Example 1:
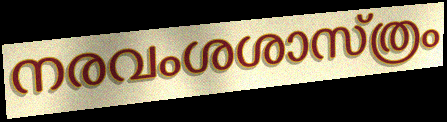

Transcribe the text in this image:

നരവംശശാസ്‌ത്രം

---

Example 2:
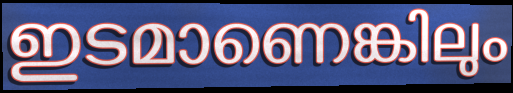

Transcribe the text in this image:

ഇടമാണെങ്കിലും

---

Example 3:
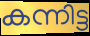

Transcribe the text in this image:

കന്നിട്ട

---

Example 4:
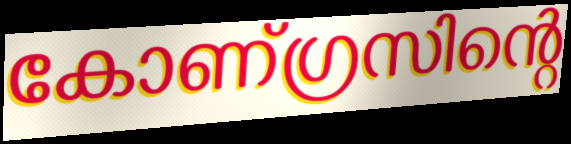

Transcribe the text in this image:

കോണ്ഗ്രസിന്റെ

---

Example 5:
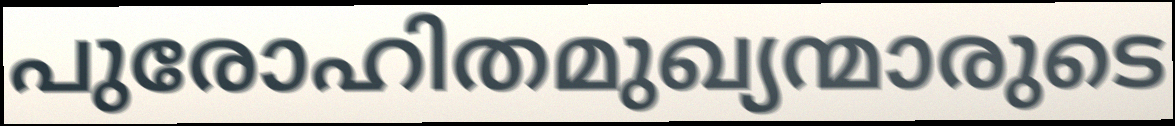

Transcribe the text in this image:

പുരോഹിതമുഖ്യന്മാരുടെ